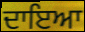
ਦਾਇਆ